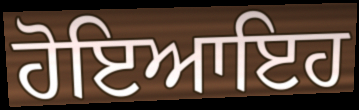
ਹੋਇਆਇਹ